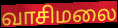
வாசிமலை